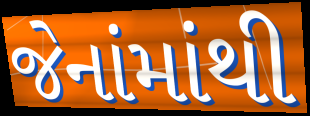
જેનાંમાંથી